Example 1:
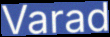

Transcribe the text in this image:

Varad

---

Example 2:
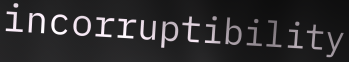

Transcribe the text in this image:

incorruptibility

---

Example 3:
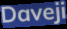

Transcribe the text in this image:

Daveji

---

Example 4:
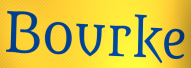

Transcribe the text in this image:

Bourke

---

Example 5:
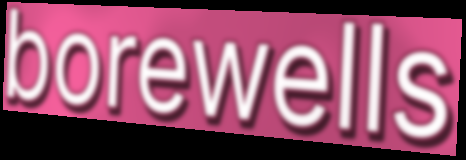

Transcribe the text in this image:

borewells